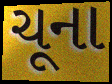
ચૂના